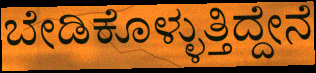
ಬೇಡಿಕೊಳ್ಳುತ್ತಿದ್ದೇನೆ